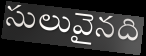
సులువైనది